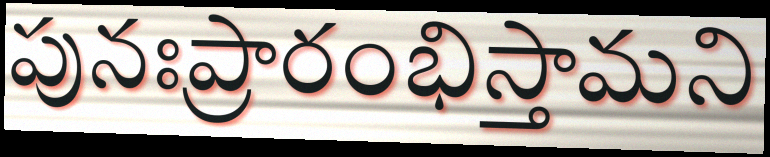
పునఃప్రారంభిస్తామని